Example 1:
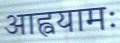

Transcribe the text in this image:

आह्वयामः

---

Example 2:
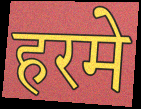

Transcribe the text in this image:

हरमे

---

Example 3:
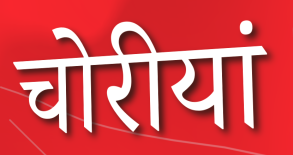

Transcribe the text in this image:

चोरीयां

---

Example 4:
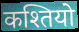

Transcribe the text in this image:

कश्तियो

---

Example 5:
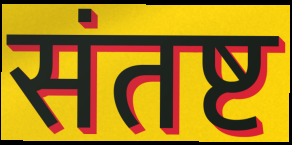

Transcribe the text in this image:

संतष्ट